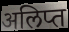
अलिप्त